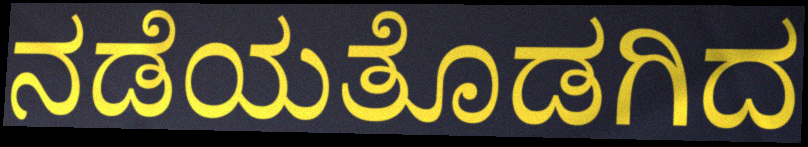
ನಡೆಯತೊಡಗಿದ